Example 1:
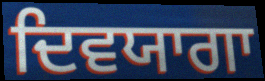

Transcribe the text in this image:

ਦਿਵਯਾਗਾ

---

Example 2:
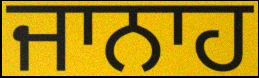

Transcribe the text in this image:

ਜਾਨਾਹ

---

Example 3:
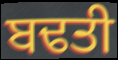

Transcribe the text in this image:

ਬਢਤੀ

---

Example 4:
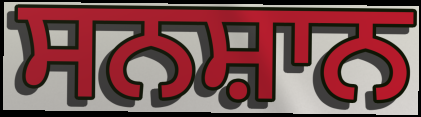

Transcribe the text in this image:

ਸਨਸ਼ਾਨ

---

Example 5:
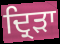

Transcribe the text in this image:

ਦ੍ਰਿੜਾ